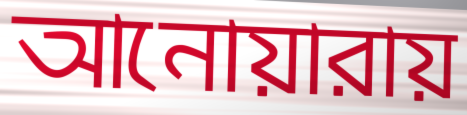
আনোয়ারায়